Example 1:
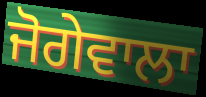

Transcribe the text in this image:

ਜੋਗੇਵਾਲਾ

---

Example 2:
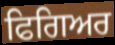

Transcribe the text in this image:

ਫਿਗਿਅਰ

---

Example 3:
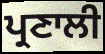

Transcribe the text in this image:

ਪ੍ਰਣਾਲੀ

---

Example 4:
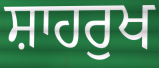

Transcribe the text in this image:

ਸ਼ਾਹਰੁਖ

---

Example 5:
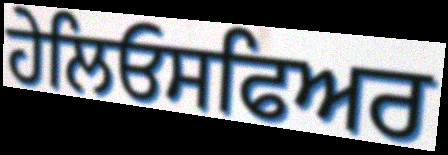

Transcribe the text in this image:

ਹੇਲਿਓਸਫਿਅਰ